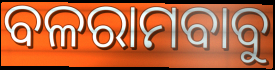
ବଳରାମବାବୁ